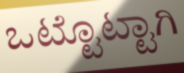
ಒಟ್ಟೊಟ್ಟಾಗಿ